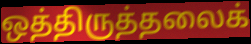
ஒத்திருத்தலைக்